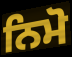
ਨਿਮੋ